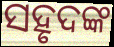
ସହୃଦଙ୍କ